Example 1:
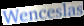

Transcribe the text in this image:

Wenceslas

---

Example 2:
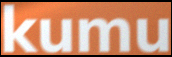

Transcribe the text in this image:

kumu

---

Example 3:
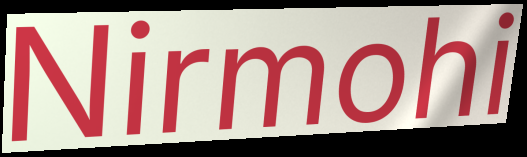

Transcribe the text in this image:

Nirmohi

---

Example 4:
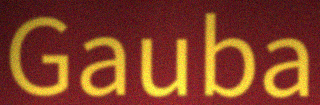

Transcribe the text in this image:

Gauba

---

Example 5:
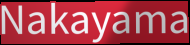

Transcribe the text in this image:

Nakayama